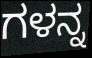
ಗಳನ್ನ